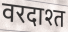
वरदाश्त